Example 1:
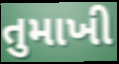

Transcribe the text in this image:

તુમાખી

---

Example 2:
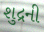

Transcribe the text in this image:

શુદ્રની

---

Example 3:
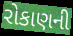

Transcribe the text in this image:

રોકાણની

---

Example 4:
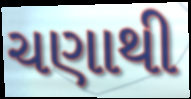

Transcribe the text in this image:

ચણાથી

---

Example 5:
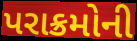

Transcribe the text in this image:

પરાક્રમોની